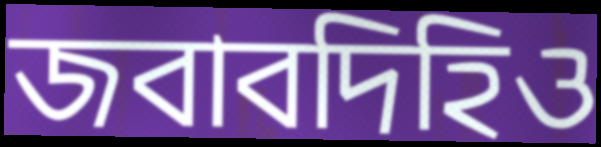
জবাবদিহিও